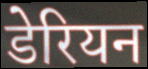
डेरियन